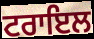
ਟਰਾਇਲ